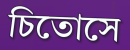
চিতোসে